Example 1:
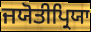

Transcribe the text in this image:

ਜਯੋਤੀਪ੍ਰਿਯਾ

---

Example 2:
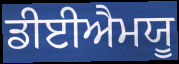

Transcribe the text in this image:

ਡੀਈਐਮਯੂ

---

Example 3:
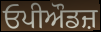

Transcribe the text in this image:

ਓਪੀਔਡਜ਼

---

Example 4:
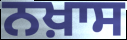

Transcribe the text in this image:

ਨਖ਼ਾਸ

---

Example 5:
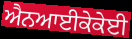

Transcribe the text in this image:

ਐਨਆਈਕੇਕੇਈ